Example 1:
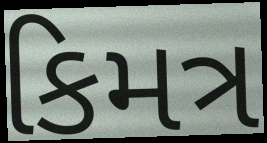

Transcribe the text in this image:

કિમત્ર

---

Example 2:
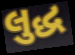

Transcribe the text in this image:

લુદ્ધ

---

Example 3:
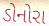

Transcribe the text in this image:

ડોનોરા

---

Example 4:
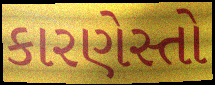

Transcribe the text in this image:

કારણેસ્તો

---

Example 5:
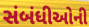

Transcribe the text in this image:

સંબંધીઓની